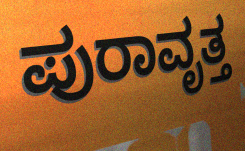
ಪುರಾವೃತ್ತ